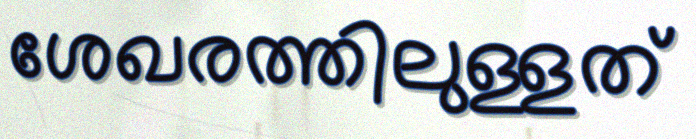
ശേഖരത്തിലുള്ളത്